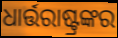
ଧାର୍ତ୍ତରାଷ୍ଟ୍ରଙ୍କର